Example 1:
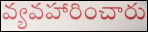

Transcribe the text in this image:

వ్యవహారించారు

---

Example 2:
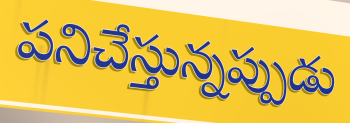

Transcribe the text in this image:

పనిచేస్తున్నప్పుడు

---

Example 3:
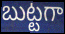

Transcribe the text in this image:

బుట్టగా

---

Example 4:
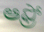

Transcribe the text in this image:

ఆఫ్రో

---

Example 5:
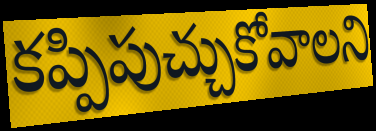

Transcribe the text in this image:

కప్పిపుచ్చుకోవాలని